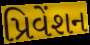
પ્રિવેંશન